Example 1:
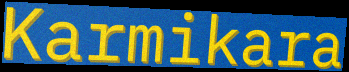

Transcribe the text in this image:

Karmikara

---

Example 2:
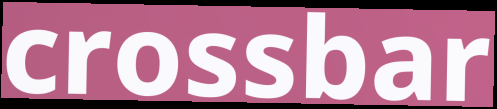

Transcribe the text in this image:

crossbar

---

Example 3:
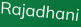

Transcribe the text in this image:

Rajadhani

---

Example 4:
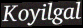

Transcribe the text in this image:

Koyilgal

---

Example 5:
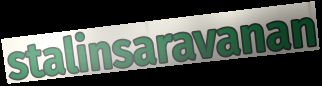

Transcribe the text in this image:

stalinsaravanan